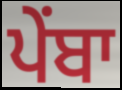
ਪੇਂਬਾ